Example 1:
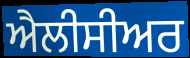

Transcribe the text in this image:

ਐਲੀਸੀਅਰ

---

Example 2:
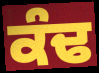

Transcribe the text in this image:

ਕੰਢ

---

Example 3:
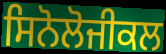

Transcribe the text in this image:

ਸਿਨੋਲੋਜੀਕਲ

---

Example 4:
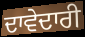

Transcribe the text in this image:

ਦਾਵੇਦਾਰੀ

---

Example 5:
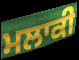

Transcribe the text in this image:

ਮਲਾਕੀ